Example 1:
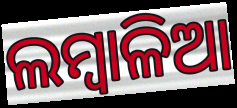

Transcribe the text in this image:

ଲମ୍ବାଳିଆ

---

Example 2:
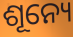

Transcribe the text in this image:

ଶୂନ୍ୟେ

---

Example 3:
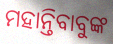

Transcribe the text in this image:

ମହାନ୍ତିବାବୁଙ୍କ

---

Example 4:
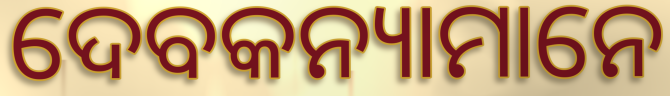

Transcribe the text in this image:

ଦେବକନ୍ୟାମାନେ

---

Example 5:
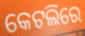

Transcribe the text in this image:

କେଟଲିରେ